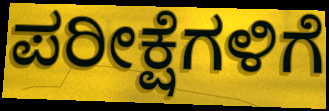
ಪರೀಕ್ಷೆಗಳಿಗೆ